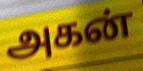
அகன்